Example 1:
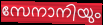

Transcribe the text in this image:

സേനാനിയും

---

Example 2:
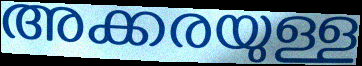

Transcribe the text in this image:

അക്കരയുള്ള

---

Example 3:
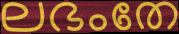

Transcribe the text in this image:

ലഭംതേ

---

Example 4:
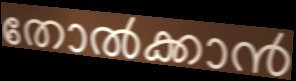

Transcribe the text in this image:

തോൽക്കാൻ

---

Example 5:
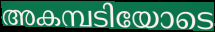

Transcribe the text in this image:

അകമ്പടിയോടെ